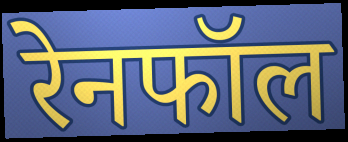
रेनफॉल